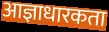
आज्ञाधारकता